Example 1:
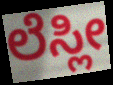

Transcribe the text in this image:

ಲೆಸ್ಲೀ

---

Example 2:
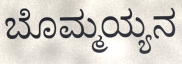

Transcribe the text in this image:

ಬೊಮ್ಮಯ್ಯನ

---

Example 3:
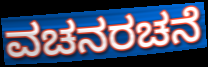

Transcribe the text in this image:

ವಚನರಚನೆ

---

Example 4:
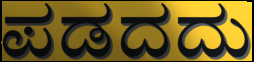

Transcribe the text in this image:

ಪಡದದು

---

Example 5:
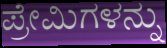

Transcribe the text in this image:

ಪ್ರೇಮಿಗಳನ್ನು